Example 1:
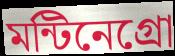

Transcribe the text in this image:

মন্টিনেগ্রো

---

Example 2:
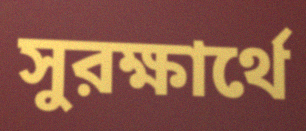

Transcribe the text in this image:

সুরক্ষার্থে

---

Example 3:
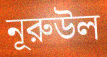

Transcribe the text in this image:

নূরুউল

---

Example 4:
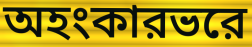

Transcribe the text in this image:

অহংকারভরে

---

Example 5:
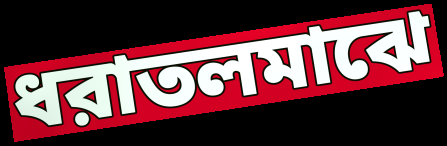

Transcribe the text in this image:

ধরাতলমাঝে